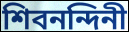
শিবনন্দিনী